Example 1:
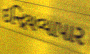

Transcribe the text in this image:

ઇન્દ્રિયવ્યાપાર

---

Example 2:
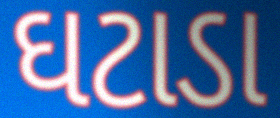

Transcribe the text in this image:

ઘટાડા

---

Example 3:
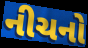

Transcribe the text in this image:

નીચનો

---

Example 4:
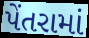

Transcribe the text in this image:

પેંતરામાં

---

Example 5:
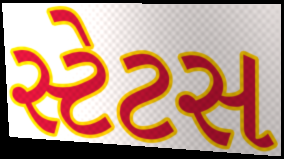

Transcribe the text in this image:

સ્ટેટસ